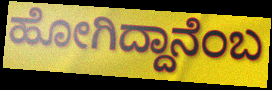
ಹೋಗಿದ್ದಾನೆಂಬ